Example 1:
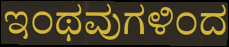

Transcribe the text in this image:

ಇಂಥವುಗಳಿಂದ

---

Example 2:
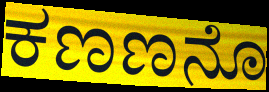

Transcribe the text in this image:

ಕಣಣನೊ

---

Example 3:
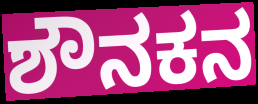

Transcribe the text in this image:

ಶೌನಕನ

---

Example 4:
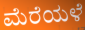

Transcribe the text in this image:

ಮೆರೆಯಳೆ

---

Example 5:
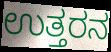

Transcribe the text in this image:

ಉತ್ತರನ